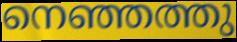
നെഞ്ഞത്തു